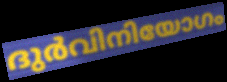
ദുർവിനിയോഗം